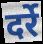
दर्रे